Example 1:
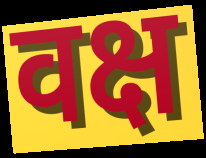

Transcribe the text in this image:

वक्ष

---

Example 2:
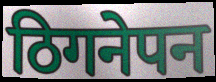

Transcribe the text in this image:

ठिगनेपन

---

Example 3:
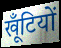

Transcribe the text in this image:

खूँटियों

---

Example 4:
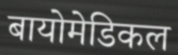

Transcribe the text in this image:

बायोमेडिकल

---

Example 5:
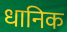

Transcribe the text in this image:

धानिक